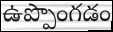
ఉప్పొంగడం